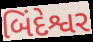
બિંદેશ્વર